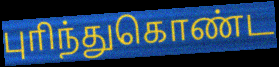
புரிந்துகொண்ட